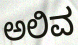
ಅಲಿವ